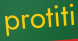
protiti